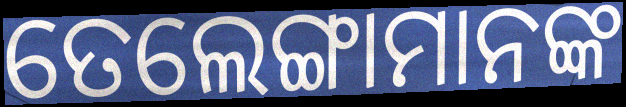
ତେଲେଙ୍ଗାମାନଙ୍କ